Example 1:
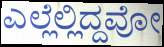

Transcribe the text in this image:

ಎಲ್ಲೆಲ್ಲಿದ್ದವೋ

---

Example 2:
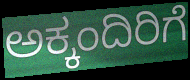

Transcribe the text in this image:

ಅಕ್ಕಂದಿರಿಗೆ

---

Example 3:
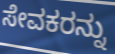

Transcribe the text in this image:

ಸೇವಕರನ್ನು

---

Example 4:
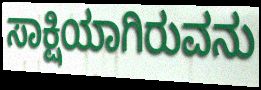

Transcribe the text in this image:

ಸಾಕ್ಷಿಯಾಗಿರುವನು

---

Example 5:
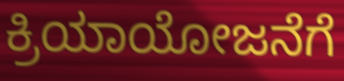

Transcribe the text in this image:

ಕ್ರಿಯಾಯೋಜನೆಗೆ